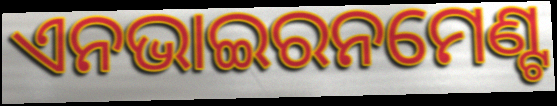
ଏନଭାଇରନମେଣ୍ଟ